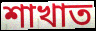
শাখাত